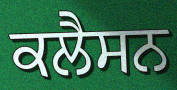
ਕਲੈਸਨ